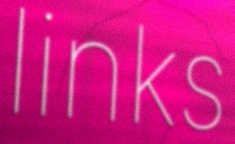
links